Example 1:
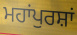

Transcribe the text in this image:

ਮਹਾਂਪੁਰਸ਼ਾਂ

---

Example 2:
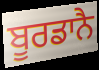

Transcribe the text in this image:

ਬੂਰਡਾਨੈ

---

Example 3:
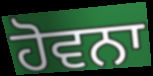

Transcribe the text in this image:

ਹੋਵਨਾ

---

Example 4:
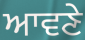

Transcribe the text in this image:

ਆਵਣੇ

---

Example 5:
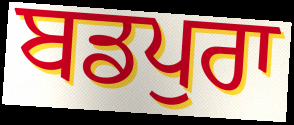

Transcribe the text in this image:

ਬਡਪੁਰਾ